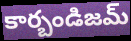
కార్బండిజమ్